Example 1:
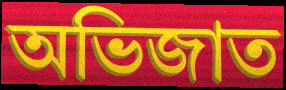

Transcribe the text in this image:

অভিজাত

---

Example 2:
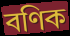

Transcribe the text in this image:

বণিক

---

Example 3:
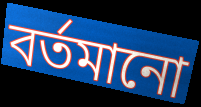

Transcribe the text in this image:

বৰ্তমানো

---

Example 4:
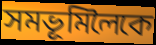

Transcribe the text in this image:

সমভূমিলৈকে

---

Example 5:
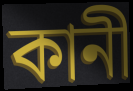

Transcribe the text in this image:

কানী